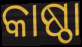
କାଷ୍ଠା